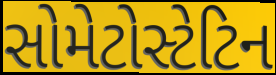
સોમેટોસ્ટેટિન